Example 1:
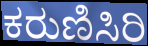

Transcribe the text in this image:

ಕರುಣಿಸಿರಿ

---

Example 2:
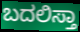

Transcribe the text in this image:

ಬದಲಿಸ್ತಾ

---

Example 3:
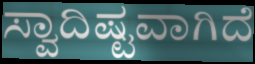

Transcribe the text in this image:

ಸ್ವಾದಿಷ್ಟವಾಗಿದೆ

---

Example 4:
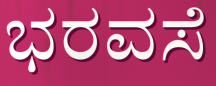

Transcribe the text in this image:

ಭರವಸೆ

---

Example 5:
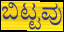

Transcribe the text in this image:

ಬಿಟ್ಟವು